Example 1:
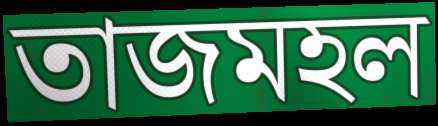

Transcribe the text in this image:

তাজমহল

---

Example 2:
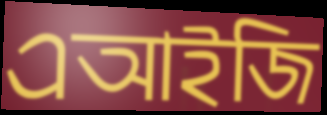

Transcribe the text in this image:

এআইজি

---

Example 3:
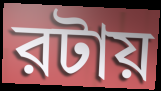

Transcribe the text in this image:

রটায়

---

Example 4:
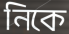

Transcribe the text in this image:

নিকে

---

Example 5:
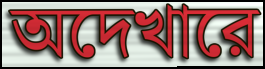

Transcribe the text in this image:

অদেখারে